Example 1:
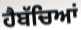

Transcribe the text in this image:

ਹੈਬੱਚਿਆਂ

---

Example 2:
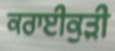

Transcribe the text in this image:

ਕਰਾਈਕੁੜੀ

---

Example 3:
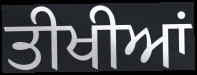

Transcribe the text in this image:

ਤੀਖੀਆਂ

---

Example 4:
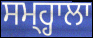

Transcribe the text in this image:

ਸਮ੍ਹ੍ਹਾਲਾ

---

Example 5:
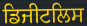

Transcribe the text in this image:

ਡਿਜੀਟਲਿਸ